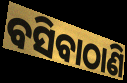
ବସିବାଠାଣି